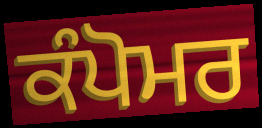
ਕੰਪੋਮਰ